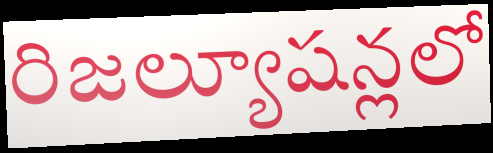
రిజల్యూషన్లలో